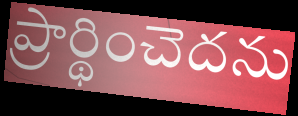
ప్రార్థించెదను